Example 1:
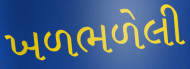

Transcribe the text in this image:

ખળભળેલી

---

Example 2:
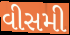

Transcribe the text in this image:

વીસમી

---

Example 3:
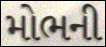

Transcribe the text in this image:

મોભની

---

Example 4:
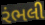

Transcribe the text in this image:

રંભલી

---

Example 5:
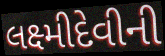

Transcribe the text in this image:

લક્ષ્મીદેવીની